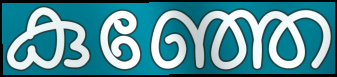
കുഞ്ഞേ